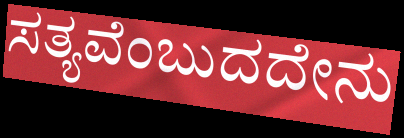
ಸತ್ಯವೆಂಬುದದೇನು